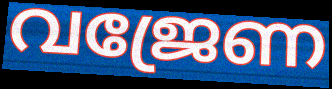
വജ്രേണ